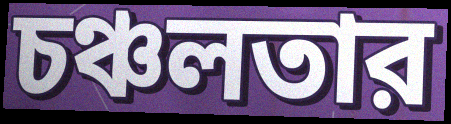
চঞ্চলতার